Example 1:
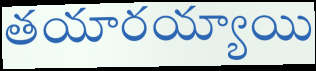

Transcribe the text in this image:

తయారయ్యాయి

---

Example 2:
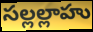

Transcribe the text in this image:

సల్లల్లాహు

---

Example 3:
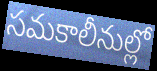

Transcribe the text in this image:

సమకాలీనుల్లో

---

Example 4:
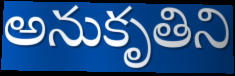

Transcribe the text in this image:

అనుకృతిని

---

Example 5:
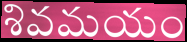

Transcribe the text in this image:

శివమయం